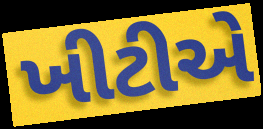
ખીટીએ